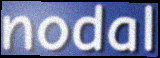
nodal